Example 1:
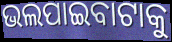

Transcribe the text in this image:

ଭଲପାଇବାଟାକୁ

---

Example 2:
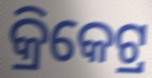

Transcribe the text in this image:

କ୍ରିକେଟ୍ର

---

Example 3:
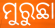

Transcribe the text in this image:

ମୁରୁଛା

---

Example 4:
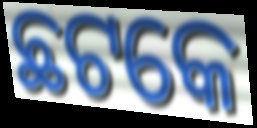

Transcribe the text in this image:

ଛଟକେ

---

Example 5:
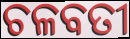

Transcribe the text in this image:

ଚଳବତୀ